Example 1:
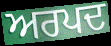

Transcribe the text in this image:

ਅਰਪਦ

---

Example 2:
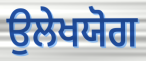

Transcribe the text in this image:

ਉਲੇਖਯੋਗ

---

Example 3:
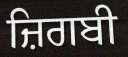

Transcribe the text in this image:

ਜ਼ਿਗਬੀ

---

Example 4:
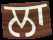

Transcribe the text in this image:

ਲਾ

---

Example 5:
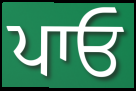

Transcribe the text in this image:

ਪਾਓ